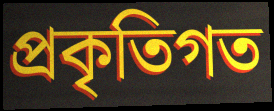
প্রকৃতিগত